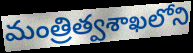
మంత్రిత్వశాఖలోని